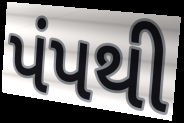
પંપથી